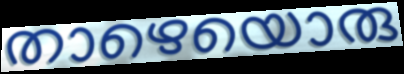
താഴെയൊരു